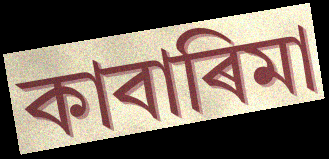
কাবাৰিমা